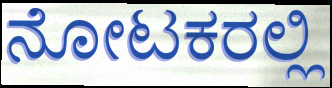
ನೋಟಕರಲ್ಲಿ